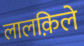
लालक़िले